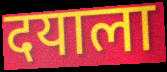
दयाला